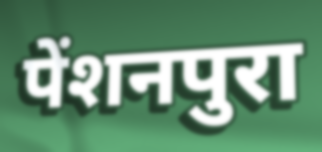
पेंशनपुरा